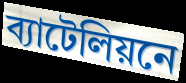
ব্যাটেলিয়নে